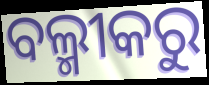
ବଲ୍ମୀକରୁ